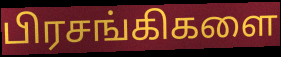
பிரசங்கிகளை